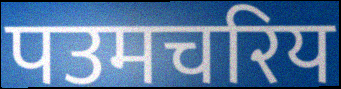
पउमचरिय